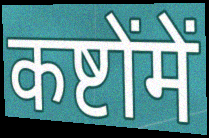
कष्टोंमें